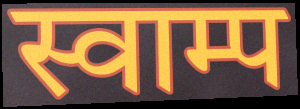
स्वाम्प